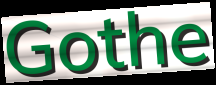
Gothe